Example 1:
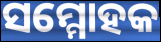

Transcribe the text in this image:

ସମ୍ମୋହକ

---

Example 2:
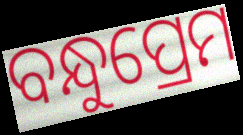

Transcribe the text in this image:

ବନ୍ଧୁପ୍ରେମ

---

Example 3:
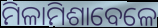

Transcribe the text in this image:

ମିଳାମିଶାବେଳେ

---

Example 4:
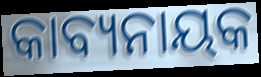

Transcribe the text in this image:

କାବ୍ୟନାୟକ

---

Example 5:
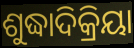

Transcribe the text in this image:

ଶୁଦ୍ଧାଦିକ୍ରିୟା